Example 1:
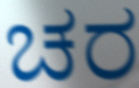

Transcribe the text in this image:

ಚರ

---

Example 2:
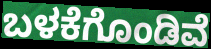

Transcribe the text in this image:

ಬಳಕೆಗೊಂಡಿವೆ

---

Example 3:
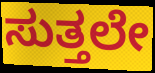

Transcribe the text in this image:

ಸುತ್ತಲೇ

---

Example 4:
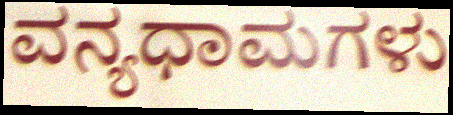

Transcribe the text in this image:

ವನ್ಯಧಾಮಗಳು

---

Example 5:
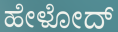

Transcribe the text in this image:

ಹೇಳೋದ್